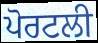
ਪੋਰਟਲੀ